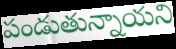
పండుతున్నాయని